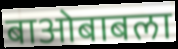
बाओबाबला